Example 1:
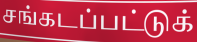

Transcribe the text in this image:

சங்கடப்பட்டுக்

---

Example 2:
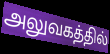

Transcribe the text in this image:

அலுவகத்தில்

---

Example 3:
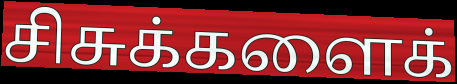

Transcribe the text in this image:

சிசுக்களைக்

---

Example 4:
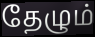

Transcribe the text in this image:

தேழும்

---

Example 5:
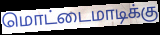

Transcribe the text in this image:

மொட்டைமாடிக்கு